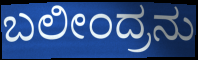
ಬಲೀಂದ್ರನು